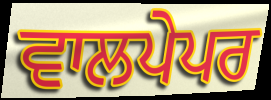
ਵਾਲਪੇਪਰ